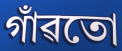
গাঁৱতো